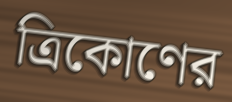
ত্রিকোণের